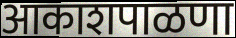
आकाशपाळणा